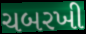
ચબરખી